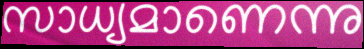
സാധ്യമാണെന്നു